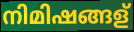
നിമിഷങ്ങള്